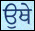
ਉਥੇ